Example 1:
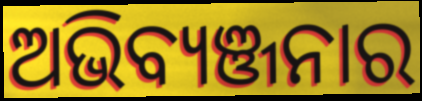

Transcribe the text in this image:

ଅଭିବ୍ୟଞ୍ଜନାର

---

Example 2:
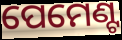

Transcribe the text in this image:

ପେମେଣ୍ଟ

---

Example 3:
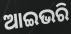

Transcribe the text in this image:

ଆଇଭରି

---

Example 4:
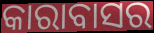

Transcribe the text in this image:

କାରାବାସର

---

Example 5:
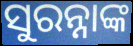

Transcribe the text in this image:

ସୁରନ୍ନାଙ୍କ